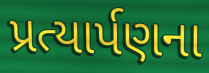
પ્રત્યાર્પણના